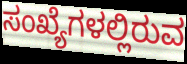
ಸಂಖ್ಯೆಗಳಲ್ಲಿರುವ